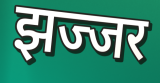
झज्जर